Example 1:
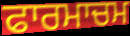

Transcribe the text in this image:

ਫਾਰਮਾਚਮ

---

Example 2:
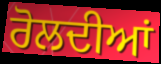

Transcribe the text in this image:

ਰੋਲਦੀਆਂ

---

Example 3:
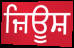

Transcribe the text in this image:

ਜ਼ਿਊਸ਼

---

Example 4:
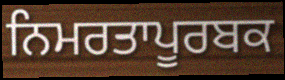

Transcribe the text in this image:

ਨਿਮਰਤਾਪੂਰਬਕ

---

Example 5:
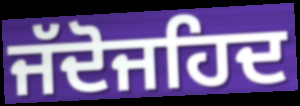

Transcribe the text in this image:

ਜੱਦੋਜਹਿਦ